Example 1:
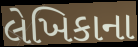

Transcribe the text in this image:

લેખિકાના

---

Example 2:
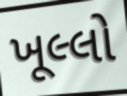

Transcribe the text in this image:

ખૂલ્લો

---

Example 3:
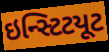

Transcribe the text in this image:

ઇન્સ્ટિટયૂટ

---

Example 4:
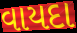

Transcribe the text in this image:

વાયદા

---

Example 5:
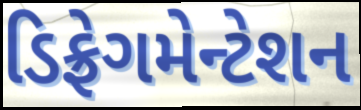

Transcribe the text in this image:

ડિફ્રેગમેન્ટેશન